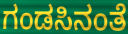
ಗಂಡಸಿನಂತೆ